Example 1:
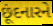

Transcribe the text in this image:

છૂંદનારને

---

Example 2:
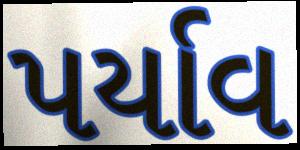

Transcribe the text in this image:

પર્યાવ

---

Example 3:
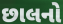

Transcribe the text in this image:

છાલનો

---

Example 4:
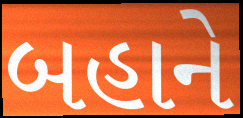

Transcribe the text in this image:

બહાને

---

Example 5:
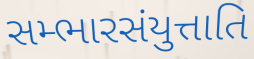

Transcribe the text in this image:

સમ્ભારસંયુત્તાતિ